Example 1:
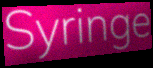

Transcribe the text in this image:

Syringe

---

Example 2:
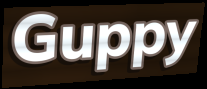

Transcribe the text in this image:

Guppy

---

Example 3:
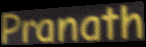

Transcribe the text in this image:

Pranath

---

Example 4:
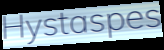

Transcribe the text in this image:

Hystaspes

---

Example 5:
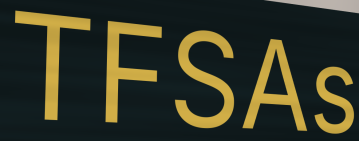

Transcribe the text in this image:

TFSAs